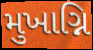
મુખાગ્નિ